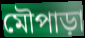
মৌপাড়া